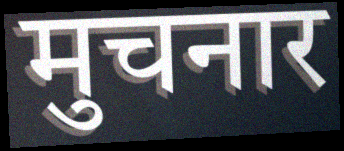
मुचनार